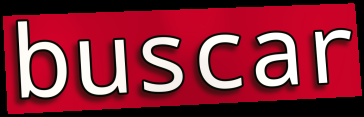
buscar